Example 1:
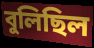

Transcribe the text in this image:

বুলিছিল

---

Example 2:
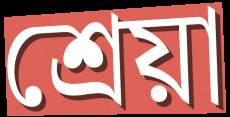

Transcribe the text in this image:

শ্ৰেয়া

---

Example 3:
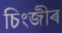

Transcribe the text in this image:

চিংজীৰ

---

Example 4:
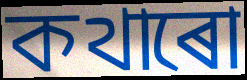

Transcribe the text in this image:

কথাৰো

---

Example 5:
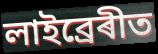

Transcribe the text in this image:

লাইব্ৰেৰীত